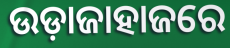
ଉଡ଼ାଜାହାଜରେ